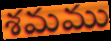
శమము